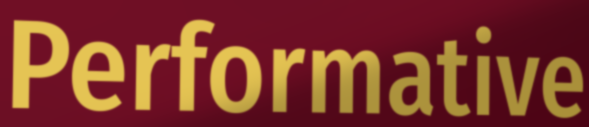
Performative